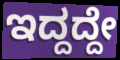
ಇದ್ದದ್ದೇ